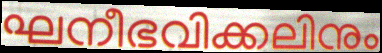
ഘനീഭവിക്കലിനും